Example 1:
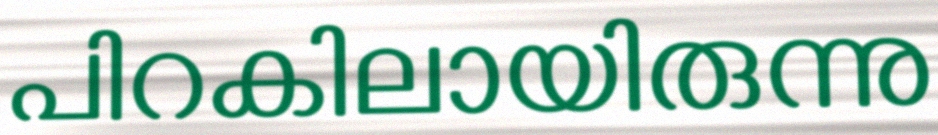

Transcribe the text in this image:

പിറകിലായിരുന്നു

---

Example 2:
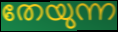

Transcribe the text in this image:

തേയുന്ന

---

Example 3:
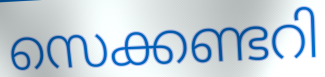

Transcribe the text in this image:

സെക്കണ്ടറി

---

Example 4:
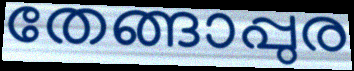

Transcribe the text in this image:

തേങ്ങാപ്പുര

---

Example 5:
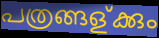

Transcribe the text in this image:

പത്രങ്ങള്ക്കും